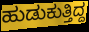
ಹುಡುಕುತ್ತಿದ್ದ